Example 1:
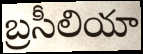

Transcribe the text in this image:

బ్రసీలియా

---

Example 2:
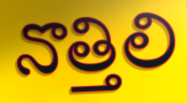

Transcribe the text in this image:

నొత్తిలి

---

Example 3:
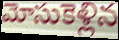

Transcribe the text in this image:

మోసుకెళ్లిన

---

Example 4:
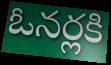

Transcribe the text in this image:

ఓనర్లకి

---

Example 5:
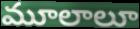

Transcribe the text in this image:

మూలాలూ